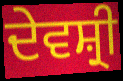
ਦੇਵਸ਼੍ਰੀ